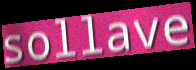
sollave